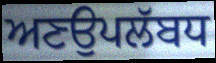
ਅਣਉਪਲੱਬਧ